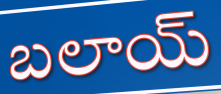
బలాయ్